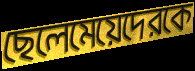
ছেলেমেয়েদেরকে